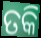
ତକି